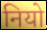
नियो